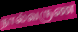
நால்வருண